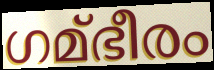
ഗമ്ഭീരം